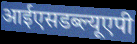
आईएसडब्ल्यूएपी